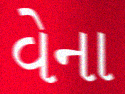
વેના